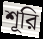
শূরি